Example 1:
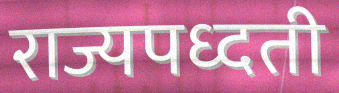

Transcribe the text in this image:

राज्यपध्दती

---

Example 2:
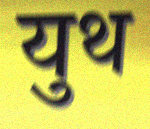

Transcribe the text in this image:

युथ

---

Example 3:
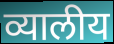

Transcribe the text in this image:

व्यालीय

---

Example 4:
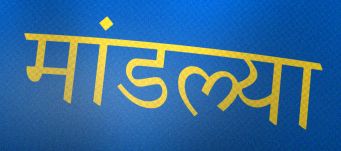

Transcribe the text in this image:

मांडल्या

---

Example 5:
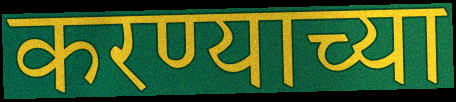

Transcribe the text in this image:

करण्याच्या